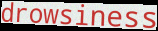
drowsiness